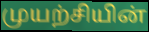
முயற்சியின்